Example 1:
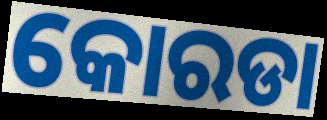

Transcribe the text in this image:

କୋରଡା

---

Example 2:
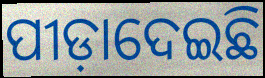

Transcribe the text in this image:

ପୀଡ଼ାଦେଇଛି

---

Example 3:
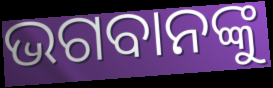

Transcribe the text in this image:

ଭଗବାନଙ୍କୁ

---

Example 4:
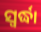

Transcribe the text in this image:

ସ୍ଵର୍ଦ୍ଧା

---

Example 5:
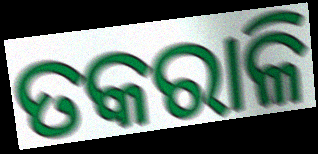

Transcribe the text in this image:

ତକରାଳି